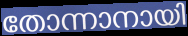
തോന്നാനായി